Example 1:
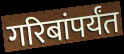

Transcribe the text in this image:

गरिबांपर्यंत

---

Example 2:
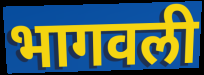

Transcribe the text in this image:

भागवली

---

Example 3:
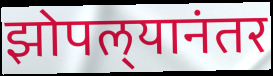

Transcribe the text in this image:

झोपल्यानंतर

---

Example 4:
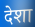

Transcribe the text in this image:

देशा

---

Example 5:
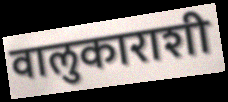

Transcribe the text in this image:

वालुकाराशी